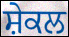
ਸ਼ੇਕਲ